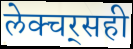
लेक्चर्सही